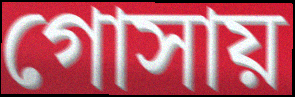
গোসায়